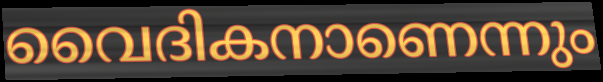
വൈദികനാണെന്നും